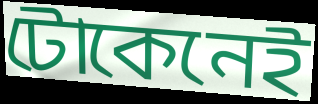
টোকেনেই